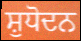
ਸ਼ੁਧੋਦਨ